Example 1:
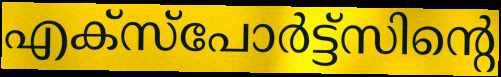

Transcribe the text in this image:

എക്സ്പോർട്ട്സിന്റെ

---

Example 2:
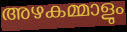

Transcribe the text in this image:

അഴകമ്മാളും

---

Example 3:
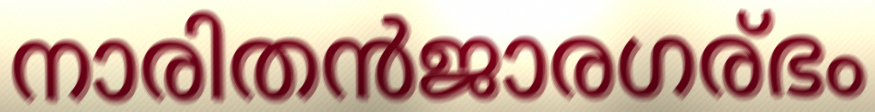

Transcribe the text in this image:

നാരിതൻജാരഗര്ഭം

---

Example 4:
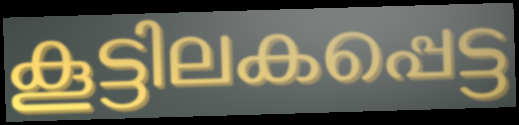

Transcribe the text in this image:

കൂട്ടിലകപ്പെട്ട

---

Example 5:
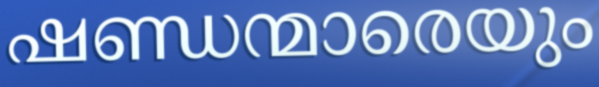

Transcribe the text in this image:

ഷണ്ഡന്മാരെയും